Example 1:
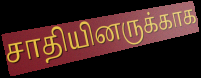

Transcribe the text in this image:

சாதியினருக்காக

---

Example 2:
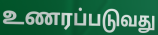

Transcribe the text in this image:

உணரப்படுவது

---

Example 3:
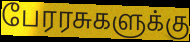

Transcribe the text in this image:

பேரரசுகளுக்கு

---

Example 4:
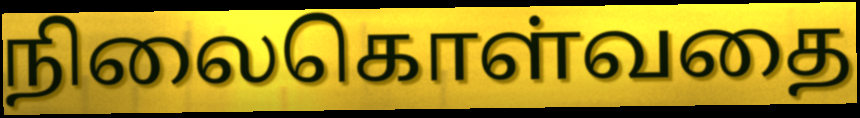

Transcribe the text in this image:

நிலைகொள்வதை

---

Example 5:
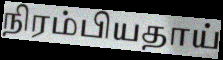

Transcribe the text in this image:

நிரம்பியதாய்